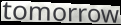
tomorrow